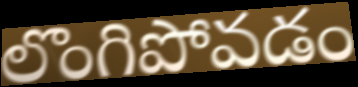
లొంగిపోవడం